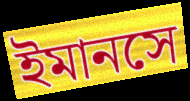
ইমানসে